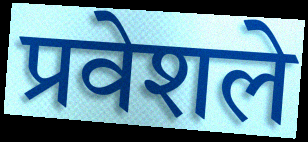
प्रवेशले